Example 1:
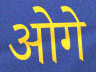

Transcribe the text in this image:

ओगे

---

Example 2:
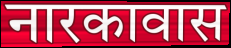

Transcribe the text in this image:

नारकावास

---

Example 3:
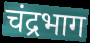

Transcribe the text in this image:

चंद्रभाग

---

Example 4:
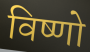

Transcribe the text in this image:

विष्णो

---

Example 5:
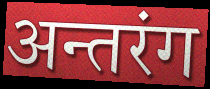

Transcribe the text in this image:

अन्तरंग